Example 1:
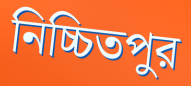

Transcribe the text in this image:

নিচ্চিতপুর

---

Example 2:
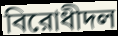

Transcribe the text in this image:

বিরোধীদল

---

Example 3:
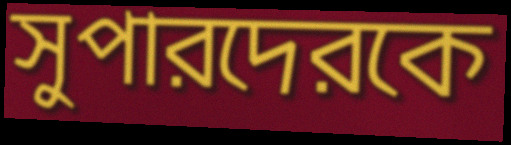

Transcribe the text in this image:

সুপারদেরকে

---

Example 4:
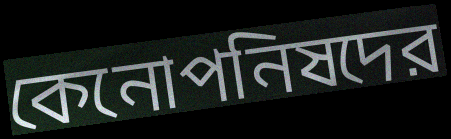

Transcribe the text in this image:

কেনোপনিষদের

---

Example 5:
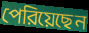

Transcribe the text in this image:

পেরিয়েছেন